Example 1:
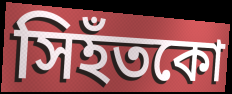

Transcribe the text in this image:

সিহঁতকো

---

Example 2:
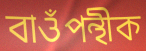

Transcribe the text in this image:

বাওঁপন্থীক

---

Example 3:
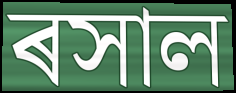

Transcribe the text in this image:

ৰসাল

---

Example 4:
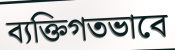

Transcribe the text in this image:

ব্যক্তিগতভাবে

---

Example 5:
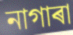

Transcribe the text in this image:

নাগাৰা